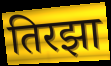
तिरझा